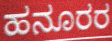
ಹನೂರರ